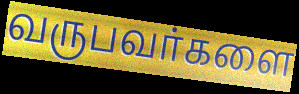
வருபவர்களை